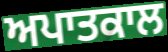
ਅਪਾਤਕਾਲ